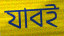
যাবই